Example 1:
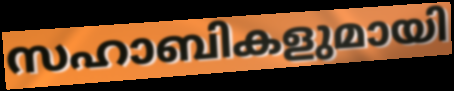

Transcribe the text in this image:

സഹാബികളുമായി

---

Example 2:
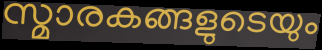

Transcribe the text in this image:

സ്മാരകങ്ങളുടെയും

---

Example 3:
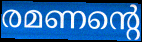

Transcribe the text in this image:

രമണന്റെ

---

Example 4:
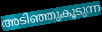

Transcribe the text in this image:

അടിഞ്ഞുകൂടുന്ന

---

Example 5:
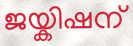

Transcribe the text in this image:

ജയ്കിഷന്